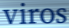
viros